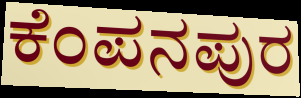
ಕೆಂಪನಪುರ